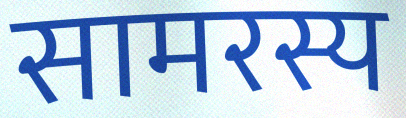
सामरस्य